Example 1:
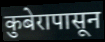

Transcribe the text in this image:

कुबेरापासून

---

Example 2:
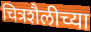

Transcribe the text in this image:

चित्रशैलीच्या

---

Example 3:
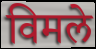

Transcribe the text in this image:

विमले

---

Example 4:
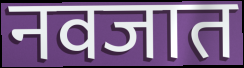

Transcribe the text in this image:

नवजात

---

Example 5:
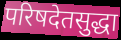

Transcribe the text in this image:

परिषदेतसुद्धा